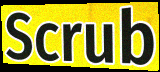
Scrub